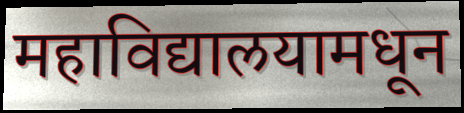
महाविद्यालयामधून